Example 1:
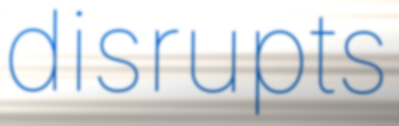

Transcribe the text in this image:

disrupts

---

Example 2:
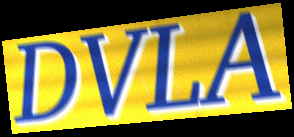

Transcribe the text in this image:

DVLA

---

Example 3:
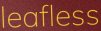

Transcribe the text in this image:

leafless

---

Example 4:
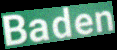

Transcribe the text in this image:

Baden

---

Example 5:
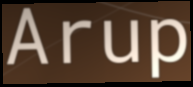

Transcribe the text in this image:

Arup